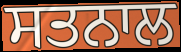
ਸਤਨਾਲ